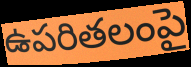
ఉపరితలంపై